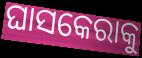
ଘାସକେରାକୁ